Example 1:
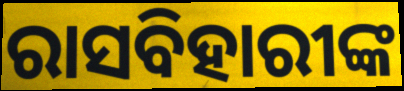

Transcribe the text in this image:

ରାସବିହାରୀଙ୍କ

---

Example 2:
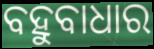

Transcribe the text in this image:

ବହୁବାଧାର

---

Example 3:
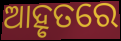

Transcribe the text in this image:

ଆହୃତରେ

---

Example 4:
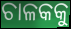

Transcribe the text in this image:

ଚାଳକକୁ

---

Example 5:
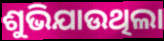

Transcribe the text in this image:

ଶୁଭିଯାଉଥିଲା